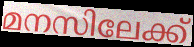
മനസിലേക്ക്